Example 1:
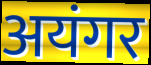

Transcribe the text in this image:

अयंगर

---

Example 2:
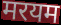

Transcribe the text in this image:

मरयम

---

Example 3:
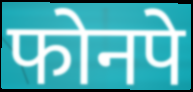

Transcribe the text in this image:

फोनपे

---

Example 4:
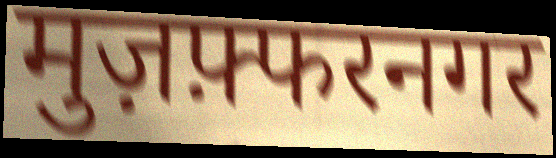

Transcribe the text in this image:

मुज़फ़्फरनगर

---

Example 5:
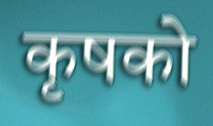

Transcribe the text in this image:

कृषको